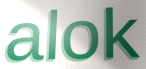
alok